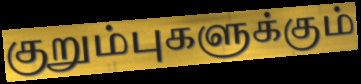
குறும்புகளுக்கும்